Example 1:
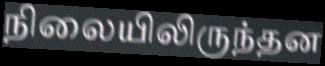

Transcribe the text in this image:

நிலையிலிருந்தன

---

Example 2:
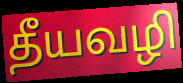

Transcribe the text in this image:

தீயவழி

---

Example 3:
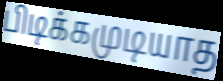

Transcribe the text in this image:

பிடிக்கமுடியாத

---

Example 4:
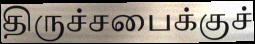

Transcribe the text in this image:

திருச்சபைக்குச்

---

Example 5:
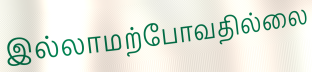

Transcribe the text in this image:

இல்லாமற்போவதில்லை